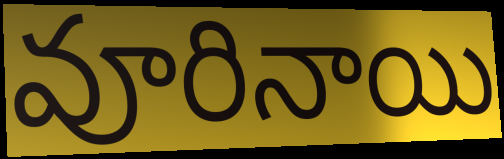
వూరినాయి